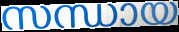
സന്ധായ